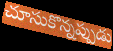
చూసుకొన్నప్పుడు